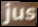
jus